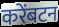
करेंबटन